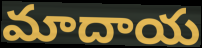
మాదాయ